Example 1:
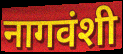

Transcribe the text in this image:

नागवंशी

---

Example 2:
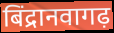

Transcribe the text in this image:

बिंद्रानवागढ़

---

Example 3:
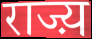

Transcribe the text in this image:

राज्य़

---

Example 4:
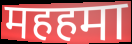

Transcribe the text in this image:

महहमा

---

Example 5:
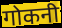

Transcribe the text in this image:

गोकनी